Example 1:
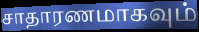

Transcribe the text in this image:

சாதாரணமாகவும்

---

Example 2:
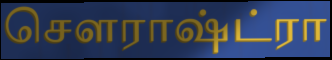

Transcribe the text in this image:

சௌராஷ்ட்ரா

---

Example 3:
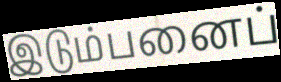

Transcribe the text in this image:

இடும்பனைப்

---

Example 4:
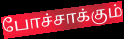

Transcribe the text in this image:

போச்சாக்கும்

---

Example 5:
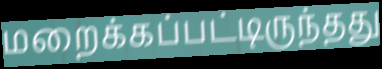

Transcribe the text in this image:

மறைக்கப்பட்டிருந்தது